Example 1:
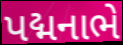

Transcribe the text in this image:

પદ્મનાભે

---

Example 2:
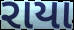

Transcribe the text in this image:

રાયા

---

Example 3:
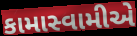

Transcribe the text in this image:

કામાસ્વામીએ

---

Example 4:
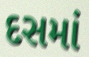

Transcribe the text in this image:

દસમાં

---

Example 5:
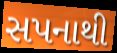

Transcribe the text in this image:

સપનાથી